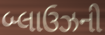
બ્લાઉઝની